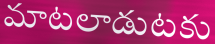
మాటలాడుటకు